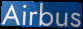
Airbus